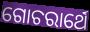
ଗୋଚରାର୍ଥେ